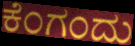
ಕೆಂಗಂದು